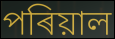
পৰিয়াল